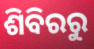
ଶିବିରରୁ